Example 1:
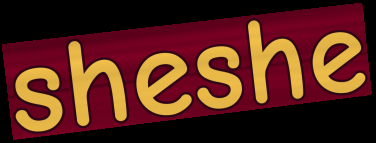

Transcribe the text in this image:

sheshe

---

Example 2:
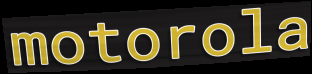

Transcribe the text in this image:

motorola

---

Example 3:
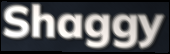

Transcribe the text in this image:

Shaggy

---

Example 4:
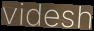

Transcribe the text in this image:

videsh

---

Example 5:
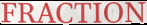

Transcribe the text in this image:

FRACTION